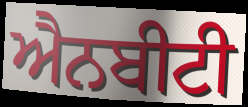
ਐਨਬੀਟੀ